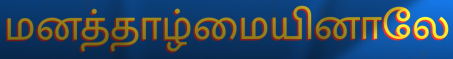
மனத்தாழ்மையினாலே